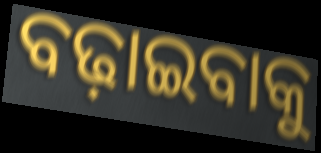
ବଢ଼ାଇବାକୁ